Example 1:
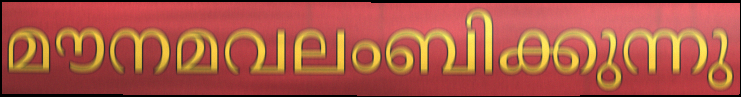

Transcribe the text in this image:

മൗനമവലംബിക്കുന്നു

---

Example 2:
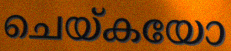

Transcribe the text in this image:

ചെയ്കയോ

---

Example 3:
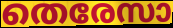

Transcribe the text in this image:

തെരേസാ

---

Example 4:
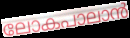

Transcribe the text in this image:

ലോകപാലാൻ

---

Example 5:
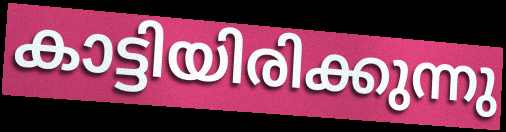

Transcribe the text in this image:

കാട്ടിയിരിക്കുന്നു